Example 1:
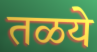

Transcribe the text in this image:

तळये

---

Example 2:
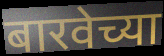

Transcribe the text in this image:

बारवेच्या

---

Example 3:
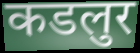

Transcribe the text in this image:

कडलुर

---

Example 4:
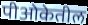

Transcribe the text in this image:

पीओकेतील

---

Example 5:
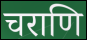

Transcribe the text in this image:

चराणि